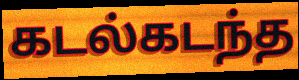
கடல்கடந்த